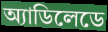
অ্যাডিলেডে